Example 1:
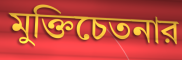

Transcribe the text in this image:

মুক্তিচেতনার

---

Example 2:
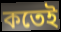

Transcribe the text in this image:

কতেই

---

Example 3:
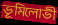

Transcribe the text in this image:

ভূমিলোভী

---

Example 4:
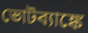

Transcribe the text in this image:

ভোটব্যাঙ্কে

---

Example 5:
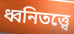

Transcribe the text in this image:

ধ্বনিতত্ত্বে